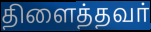
திளைத்தவர்